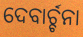
ଦେବାର୍ଚ୍ଚନା